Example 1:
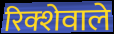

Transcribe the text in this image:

रिक्‍शेवाले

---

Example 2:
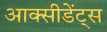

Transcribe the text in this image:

आक्सीडेंट्स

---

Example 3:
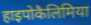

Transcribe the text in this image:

हाइपोकैलिमिया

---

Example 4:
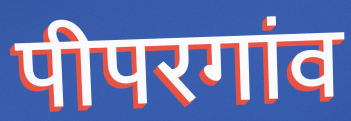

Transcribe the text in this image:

पीपरगांव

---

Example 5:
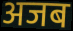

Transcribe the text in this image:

अजब